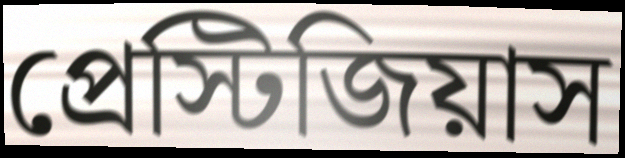
প্রেস্টিজিয়াস